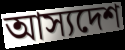
আস্যদেশ